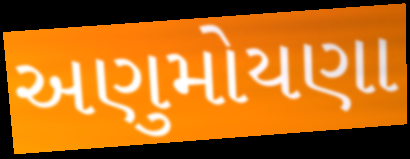
અણુમોયણા